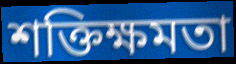
শক্তিক্ষমতা